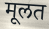
मूलत